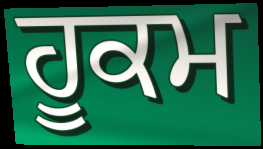
ਹੂਕਮ